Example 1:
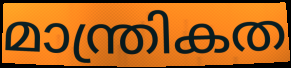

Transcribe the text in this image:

മാന്ത്രികത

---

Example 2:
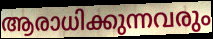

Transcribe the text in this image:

ആരാധിക്കുന്നവരും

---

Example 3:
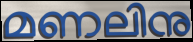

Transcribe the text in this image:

മണലിനു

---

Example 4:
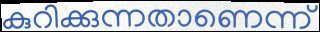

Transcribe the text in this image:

കുറിക്കുന്നതാണെന്ന്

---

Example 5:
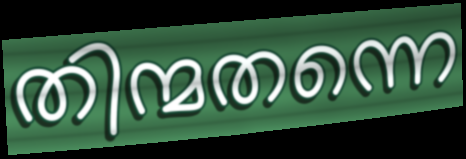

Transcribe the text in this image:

തിന്മതന്നെ